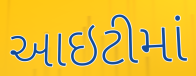
આઇટીમાં